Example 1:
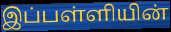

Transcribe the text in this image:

இப்பள்ளியின்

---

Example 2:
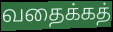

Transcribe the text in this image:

வதைக்கத்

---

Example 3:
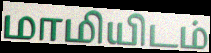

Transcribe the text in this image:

மாமியிடம்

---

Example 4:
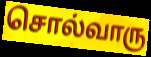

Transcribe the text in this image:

சொல்வாரு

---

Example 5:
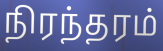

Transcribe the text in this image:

நிரந்தரம்